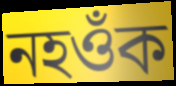
নহওঁক